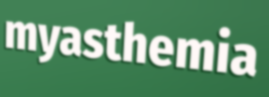
myasthemia